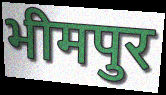
भीमपुर